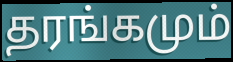
தரங்கமும்